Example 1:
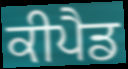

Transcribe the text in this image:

ਕੀਪੈਡ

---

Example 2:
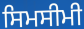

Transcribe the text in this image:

ਸਿਮਸੀਮੀ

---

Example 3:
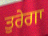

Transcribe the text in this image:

ਤੁਰੇਗਾ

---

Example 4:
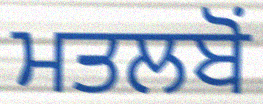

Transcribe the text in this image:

ਮਤਲਬੋਂ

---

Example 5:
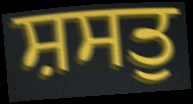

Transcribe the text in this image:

ਸ਼ਸਤੁ